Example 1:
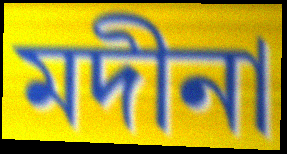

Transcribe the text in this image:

মদীনা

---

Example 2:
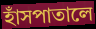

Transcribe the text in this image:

হাঁসপাতালে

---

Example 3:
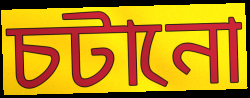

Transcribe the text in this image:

চটানো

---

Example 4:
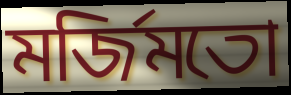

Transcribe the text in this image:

মর্জিমতো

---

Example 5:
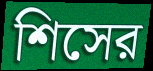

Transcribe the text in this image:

শিসের